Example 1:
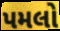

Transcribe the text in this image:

પમલો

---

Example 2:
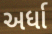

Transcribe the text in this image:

અર્ધા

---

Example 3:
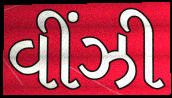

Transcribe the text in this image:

વીંઝી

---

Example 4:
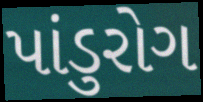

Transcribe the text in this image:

પાંડુરોગ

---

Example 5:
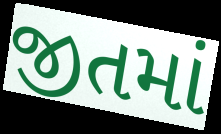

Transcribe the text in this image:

જીતમાં